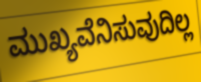
ಮುಖ್ಯವೆನಿಸುವುದಿಲ್ಲ